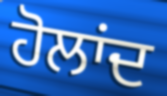
ਹੋਲਾਂਦ